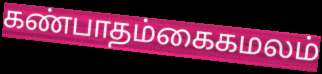
கண்பாதம்கைகமலம்